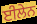
ਈਲੇਨ